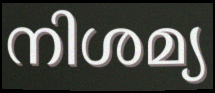
നിശമ്യ